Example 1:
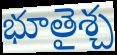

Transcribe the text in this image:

భూతైశ్చ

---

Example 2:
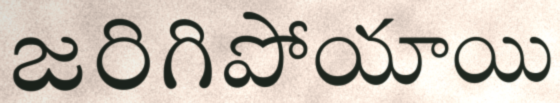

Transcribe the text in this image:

జరిగిపోయాయి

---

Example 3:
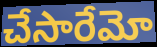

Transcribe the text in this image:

చేసారేమో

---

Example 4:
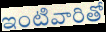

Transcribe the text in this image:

ఇంటివారితో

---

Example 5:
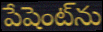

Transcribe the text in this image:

పేషెంట్‌ను